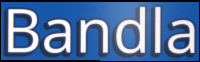
Bandla